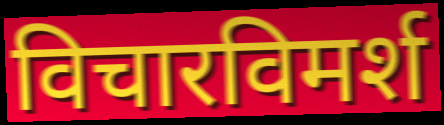
विचारविमर्श